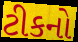
ટીકનો